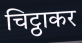
चिट्ठाकर